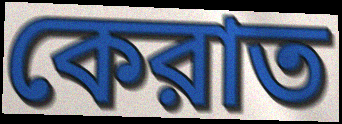
কেরাত